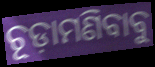
ଚୂଡ଼ାମଣିବାବୁ